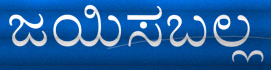
ಜಯಿಸಬಲ್ಲ